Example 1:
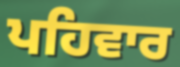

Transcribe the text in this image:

ਪਹਿਵਾਰ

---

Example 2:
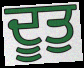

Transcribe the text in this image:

ਦੂਤੁ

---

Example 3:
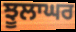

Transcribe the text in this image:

ਝੂਲਾਘਰ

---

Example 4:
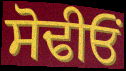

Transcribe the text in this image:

ਸੋਢੀਓਂ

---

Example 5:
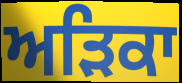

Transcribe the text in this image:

ਅੜਿਕਾ